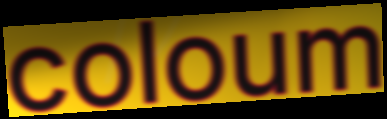
coloum